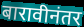
बारावीनंतर